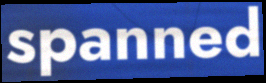
spanned